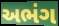
અભંગ